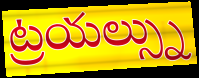
ట్రయల్స్ను